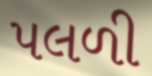
પલળી